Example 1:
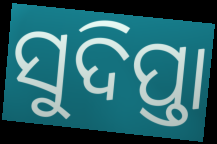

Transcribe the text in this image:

ସୁଦିପ୍ତା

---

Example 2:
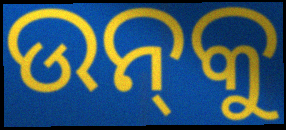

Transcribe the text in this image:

ଉନ୍‌କୁ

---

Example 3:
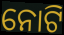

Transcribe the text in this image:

ନୋଟି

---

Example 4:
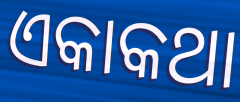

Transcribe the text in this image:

ଏକାକଥା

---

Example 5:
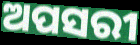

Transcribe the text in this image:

ଅପସରୀ